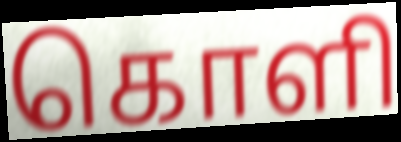
கொளி